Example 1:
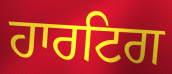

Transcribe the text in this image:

ਹਾਰਟਿਗ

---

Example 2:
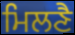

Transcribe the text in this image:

ਮਿਲਣੈ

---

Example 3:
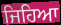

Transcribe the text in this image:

ਜਿਹਿਆ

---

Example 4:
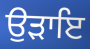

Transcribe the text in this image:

ਉੜਾਇ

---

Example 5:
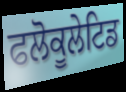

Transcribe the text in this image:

ਫਲੋਕੂਲੇਟਿਡ